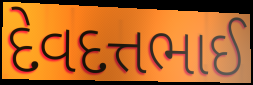
દેવદત્તભાઈ